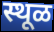
स्थूळ